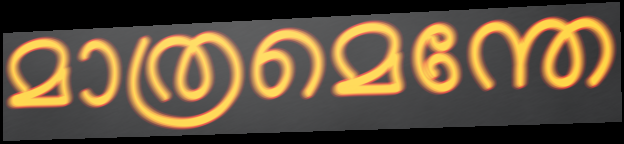
മാത്രമെന്തേ